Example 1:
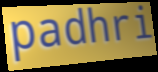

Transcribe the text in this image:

padhri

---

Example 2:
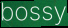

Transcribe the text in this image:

bossy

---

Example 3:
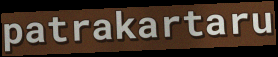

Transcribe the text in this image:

patrakartaru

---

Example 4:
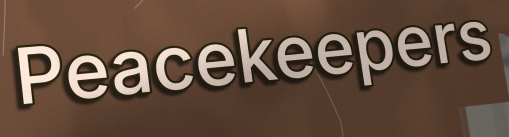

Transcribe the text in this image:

Peacekeepers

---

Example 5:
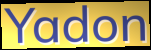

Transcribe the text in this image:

Yadon